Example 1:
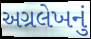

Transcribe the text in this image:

અગ્રલેખનું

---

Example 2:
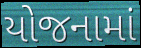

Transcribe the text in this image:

યોજનામાં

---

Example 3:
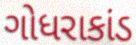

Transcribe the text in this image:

ગોધરાકાંડ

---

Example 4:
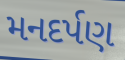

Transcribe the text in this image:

મનદર્પણ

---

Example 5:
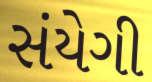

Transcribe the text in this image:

સંયેગી